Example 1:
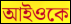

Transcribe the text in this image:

আইওকে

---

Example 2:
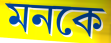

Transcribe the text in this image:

মনকে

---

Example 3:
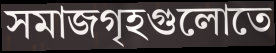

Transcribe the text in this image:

সমাজগৃহগুলোতে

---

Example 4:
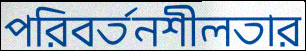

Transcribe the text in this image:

পরিবর্তনশীলতার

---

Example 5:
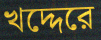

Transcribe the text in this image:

খদ্দেরে